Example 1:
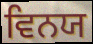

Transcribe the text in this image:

ਵਿਨਯ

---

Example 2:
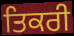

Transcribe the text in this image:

ਤਿਕਰੀ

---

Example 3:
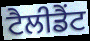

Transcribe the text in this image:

ਟੈਲੀਡੈਂਟ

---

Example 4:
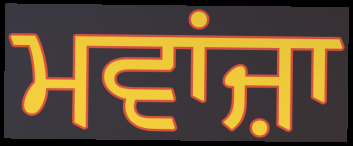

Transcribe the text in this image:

ਮਵਾਂਜ਼ਾ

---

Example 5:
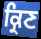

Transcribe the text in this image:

ਕ੍ਰਿਣ